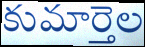
కుమార్తెల